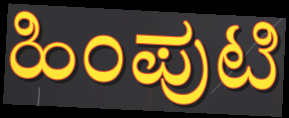
ಹಿಂಪುಟಿ